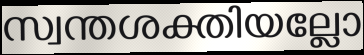
സ്വന്തശക്തിയല്ലോ